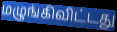
மழுங்கிவிட்டது